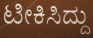
ಟೀಕಿಸಿದ್ದು